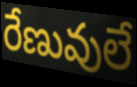
రేణువులే